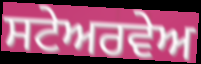
ਸਟੇਅਰਵੇਅ